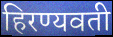
हिरण्यवती